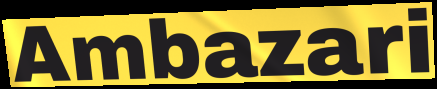
Ambazari